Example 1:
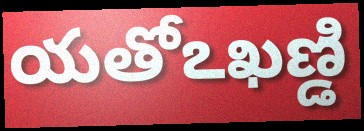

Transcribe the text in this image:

యతోఽఖణ్డి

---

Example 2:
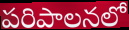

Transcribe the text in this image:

పరిపాలనలో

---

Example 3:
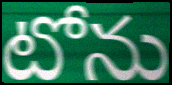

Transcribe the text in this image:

టోను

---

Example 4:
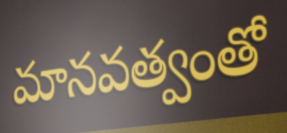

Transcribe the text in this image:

మానవత్వంతో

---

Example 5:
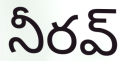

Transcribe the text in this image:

నీరవ్